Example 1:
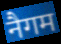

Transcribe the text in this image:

नैगम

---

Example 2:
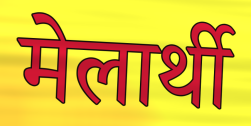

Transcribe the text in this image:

मेलार्थी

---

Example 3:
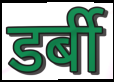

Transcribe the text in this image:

डर्बी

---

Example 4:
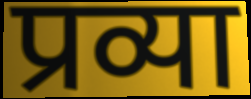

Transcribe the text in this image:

प्रव्या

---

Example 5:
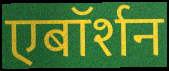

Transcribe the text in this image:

एबॉर्शन